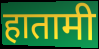
हातामी